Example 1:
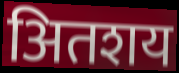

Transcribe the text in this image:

अितशय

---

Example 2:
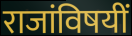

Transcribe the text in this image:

राजांविषयीं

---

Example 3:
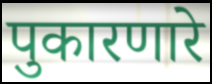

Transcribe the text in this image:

पुकारणारे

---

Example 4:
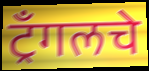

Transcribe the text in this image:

ट्रँगलचे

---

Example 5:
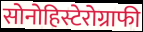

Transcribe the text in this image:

सोनोहिस्टेरोग्राफी